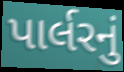
પાર્લરનું